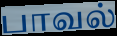
பாவல்